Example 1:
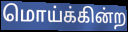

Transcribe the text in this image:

மொய்க்கின்ற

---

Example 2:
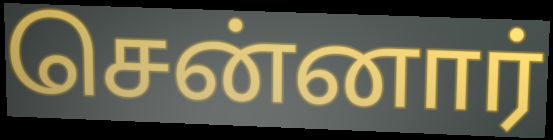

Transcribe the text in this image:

சென்னார்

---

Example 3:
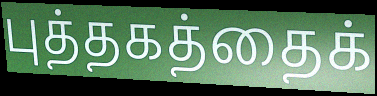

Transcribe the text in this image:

புத்தகத்தைக்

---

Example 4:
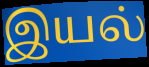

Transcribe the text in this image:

இயல்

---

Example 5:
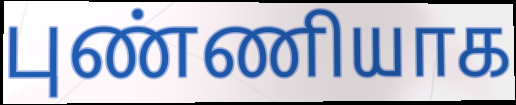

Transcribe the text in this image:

புண்ணியாக